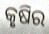
କୃଷିର